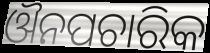
ଔନପଚାରିକ